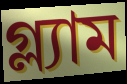
গ্ল্যাম